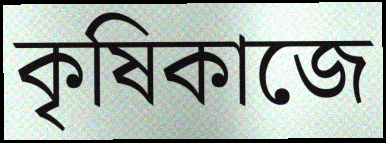
কৃষিকাজে